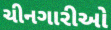
ચીનગારીઓ